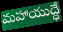
మహాయుద్ధే